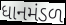
ધાનમંડળ